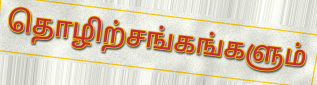
தொழிற்சங்கங்களும்